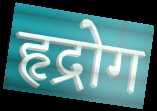
हृद्रोग